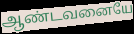
ஆண்டவனையே